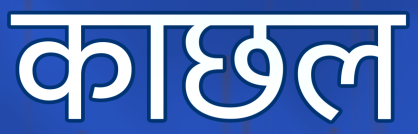
काछल